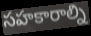
సహకారాల్ని